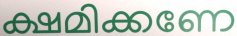
ക്ഷമിക്കണേ